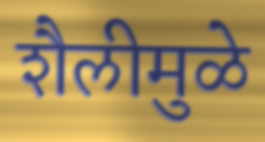
शैलीमुळे